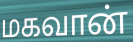
மகவான்